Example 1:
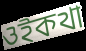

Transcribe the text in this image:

ওইকথা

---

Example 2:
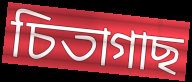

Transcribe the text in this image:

চিতাগাছ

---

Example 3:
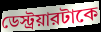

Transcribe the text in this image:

ডেস্ট্রয়ারটাকে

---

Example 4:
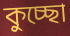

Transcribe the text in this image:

কুচ্ছো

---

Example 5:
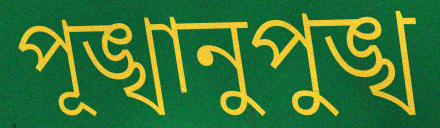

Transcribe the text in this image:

পূঙ্খানুপুঙ্খ